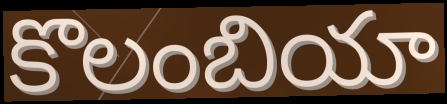
కొలంబియా